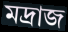
মদ্রাজ